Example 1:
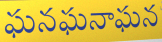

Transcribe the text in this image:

ఘనఘనాఘన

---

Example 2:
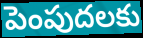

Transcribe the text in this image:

పెంపుదలకు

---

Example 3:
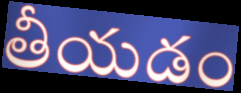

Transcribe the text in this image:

తీయడం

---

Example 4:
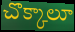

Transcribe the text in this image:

చొక్కాలూ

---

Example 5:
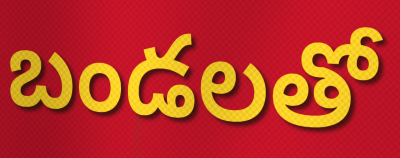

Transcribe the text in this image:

బండలతో